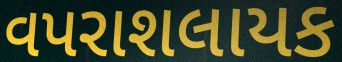
વપરાશલાયક